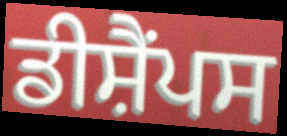
ਡੀਸ਼ੈਂਪਸ